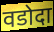
वडोदा